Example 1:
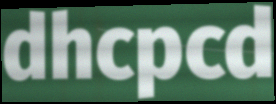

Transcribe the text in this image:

dhcpcd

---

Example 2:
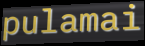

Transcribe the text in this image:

pulamai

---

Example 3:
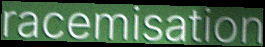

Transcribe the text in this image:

racemisation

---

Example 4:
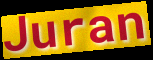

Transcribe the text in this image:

Juran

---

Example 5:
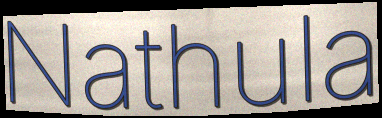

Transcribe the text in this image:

Nathula